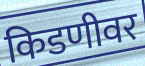
किडणीवर